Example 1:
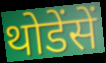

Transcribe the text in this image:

थोडेंसें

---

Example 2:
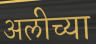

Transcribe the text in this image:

अलीच्या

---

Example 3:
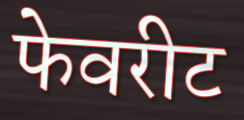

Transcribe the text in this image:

फेवरीट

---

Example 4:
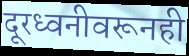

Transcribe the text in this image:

दूरध्वनीवरूनही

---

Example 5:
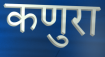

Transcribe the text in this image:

कणुरा